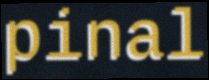
pinal